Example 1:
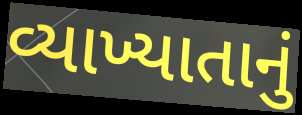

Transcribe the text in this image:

વ્યાખ્યાતાનું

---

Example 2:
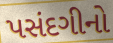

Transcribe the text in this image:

પસંદગીનો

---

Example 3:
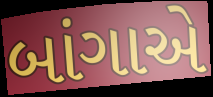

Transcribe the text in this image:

બાંગાએ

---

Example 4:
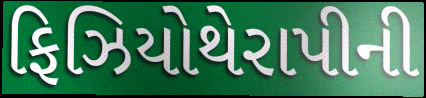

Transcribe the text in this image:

ફિઝિયોથેરાપીની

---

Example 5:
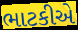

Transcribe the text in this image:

ભાટકીએ